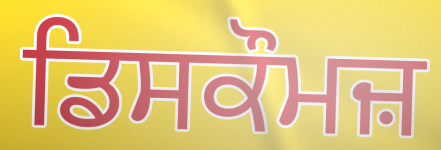
ਡਿਸਕੌਮਜ਼